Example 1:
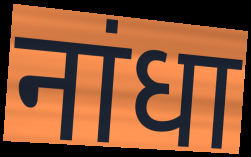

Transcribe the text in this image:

नांधा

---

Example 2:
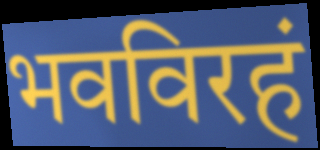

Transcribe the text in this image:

भवविरहं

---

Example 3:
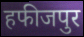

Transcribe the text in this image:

हफीजपुर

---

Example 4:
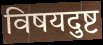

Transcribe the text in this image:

विषयदुष्ट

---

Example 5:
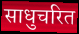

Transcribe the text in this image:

साधुचरित